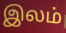
இலம்